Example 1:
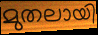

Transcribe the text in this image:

മുതലായി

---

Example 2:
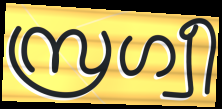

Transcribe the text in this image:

സ്രഗ്വീ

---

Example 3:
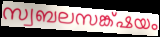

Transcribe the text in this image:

സ്വബലസങ്ക്ഷയം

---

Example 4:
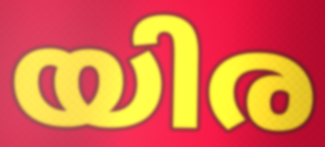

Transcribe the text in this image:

യിര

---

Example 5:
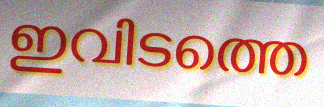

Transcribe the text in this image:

ഇവിടത്തെ